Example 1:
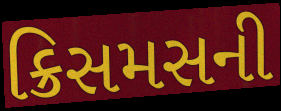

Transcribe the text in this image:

ક્રિસમસની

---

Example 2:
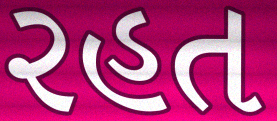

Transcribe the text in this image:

રહત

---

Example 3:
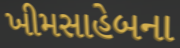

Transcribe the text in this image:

ખીમસાહેબના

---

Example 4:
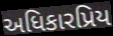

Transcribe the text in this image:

અધિકારપ્રિય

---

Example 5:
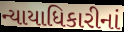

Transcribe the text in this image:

ન્યાયાધિકારીનાં